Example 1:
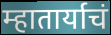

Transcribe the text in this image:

म्हातार्याचं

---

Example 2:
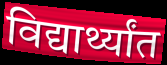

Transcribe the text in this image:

विद्यार्थ्यांत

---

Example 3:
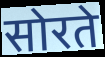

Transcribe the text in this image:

सोरते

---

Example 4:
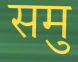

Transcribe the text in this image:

समु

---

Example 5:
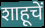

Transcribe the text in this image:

शाहूचें